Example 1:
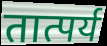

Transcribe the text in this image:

तात्पर्य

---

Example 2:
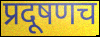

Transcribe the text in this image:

प्रदूषणच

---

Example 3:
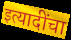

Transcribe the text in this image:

इत्यादींचा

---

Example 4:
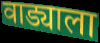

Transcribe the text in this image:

वाड्याला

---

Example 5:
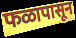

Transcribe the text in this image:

फळापासून